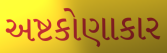
અષ્ટકોણાકાર